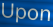
Upon